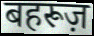
बहरूज़